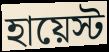
হায়েস্ট